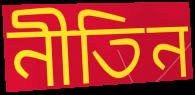
নীতিন